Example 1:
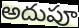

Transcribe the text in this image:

అదుపూ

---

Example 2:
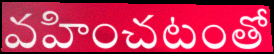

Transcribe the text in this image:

వహించటంతో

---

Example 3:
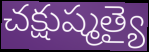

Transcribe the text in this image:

చక్షుష్మత్యై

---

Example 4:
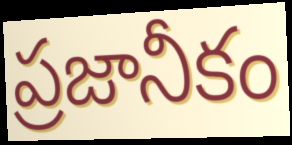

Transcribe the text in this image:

ప్రజానీకం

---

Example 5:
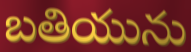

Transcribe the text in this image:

బతియును